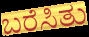
ಬರೆಸಿತು